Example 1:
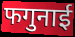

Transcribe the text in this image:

फगुनाई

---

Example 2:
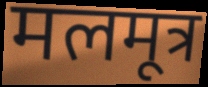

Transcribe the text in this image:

मलमूत्र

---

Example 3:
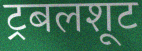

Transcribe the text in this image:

ट्रबलशूट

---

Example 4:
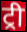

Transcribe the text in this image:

ट्री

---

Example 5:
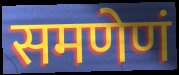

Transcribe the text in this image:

समणेणं